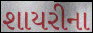
શાયરીના